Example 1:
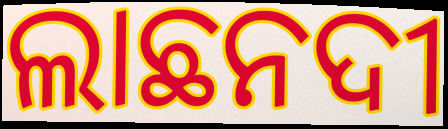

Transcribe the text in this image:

ଲାଛନଦୀ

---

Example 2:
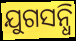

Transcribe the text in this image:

ଯୁଗସନ୍ଧି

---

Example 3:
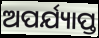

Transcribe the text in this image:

ଅପର୍ଯ୍ୟାପ୍ତ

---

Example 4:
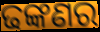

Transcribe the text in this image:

ଢଙ୍କଣର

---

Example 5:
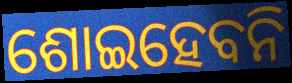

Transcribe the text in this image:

ଶୋଇହେବନି